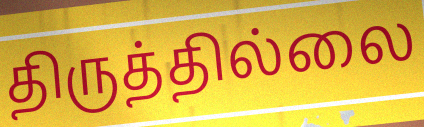
திருத்தில்லை